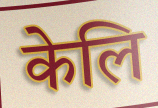
केलि